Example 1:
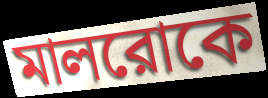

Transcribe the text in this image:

মালরোকে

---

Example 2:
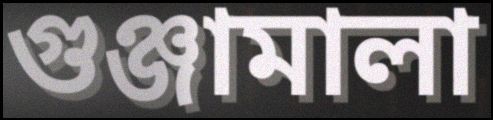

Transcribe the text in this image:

গুঞ্জামালা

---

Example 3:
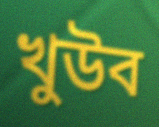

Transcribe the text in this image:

খুউব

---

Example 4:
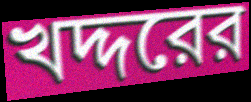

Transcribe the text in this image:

খদ্দরের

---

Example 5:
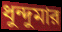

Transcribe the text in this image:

ধুন্দুমার